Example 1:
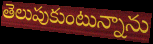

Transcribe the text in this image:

తెలుపుకుంటున్నాను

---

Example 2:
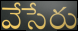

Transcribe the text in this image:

వేసేరు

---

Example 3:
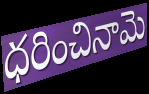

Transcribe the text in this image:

ధరించినామె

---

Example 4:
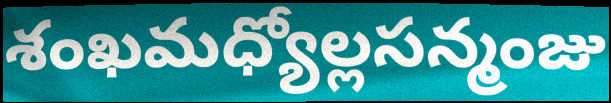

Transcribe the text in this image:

శంఖమధ్యోల్లసన్మంజు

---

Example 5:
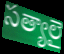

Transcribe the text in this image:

సత్యాలై